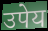
उपेय